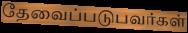
தேவைப்படுபவர்கள்